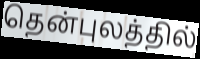
தென்புலத்தில்